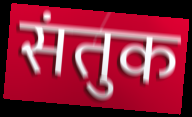
संतुक